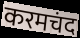
करमचंद